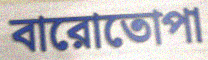
বারোতোপা